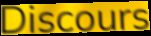
Discours